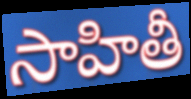
సాహితీ